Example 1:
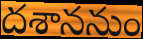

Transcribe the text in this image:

దశాననుం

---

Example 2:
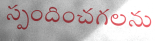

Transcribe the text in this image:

స్పందించగలను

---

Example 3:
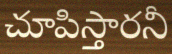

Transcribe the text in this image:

చూపిస్తారనీ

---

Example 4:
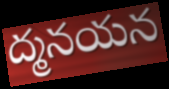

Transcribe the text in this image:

ద్మనయన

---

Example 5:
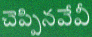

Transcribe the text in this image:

చెప్పినవేవీ